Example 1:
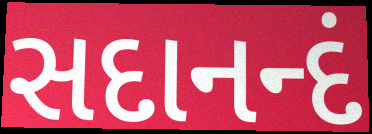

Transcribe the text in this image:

સદાનન્દં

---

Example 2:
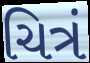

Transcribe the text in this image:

ચિત્રં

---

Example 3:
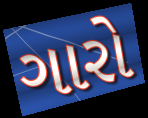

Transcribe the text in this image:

ગારો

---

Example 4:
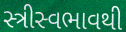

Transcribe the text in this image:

સ્ત્રીસ્વભાવથી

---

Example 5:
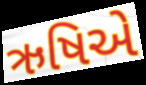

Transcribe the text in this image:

ઋષિએ